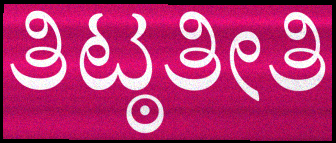
ತಿಟ್ಠತೀತಿ